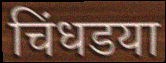
चिंधडया